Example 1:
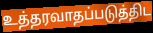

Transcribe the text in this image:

உத்தரவாதப்படுத்திட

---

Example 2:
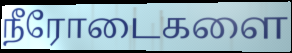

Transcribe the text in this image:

நீரோடைகளை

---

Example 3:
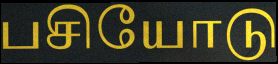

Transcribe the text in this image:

பசியோடு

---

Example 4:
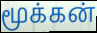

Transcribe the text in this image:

மூக்கன்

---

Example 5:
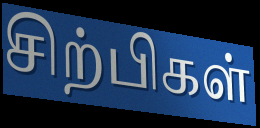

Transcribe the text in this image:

சிற்பிகள்